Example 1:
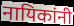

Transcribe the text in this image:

नायिकांनी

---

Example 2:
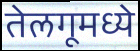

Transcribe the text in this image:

तेलगूमध्ये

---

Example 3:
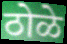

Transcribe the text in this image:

ठोळे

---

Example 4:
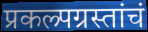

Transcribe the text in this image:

प्रकल्पग्रस्तांचं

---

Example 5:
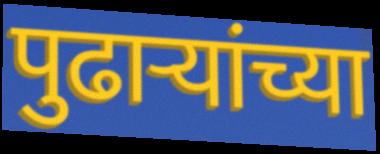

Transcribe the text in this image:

पुढाऱ्यांच्या